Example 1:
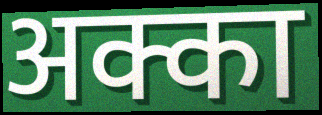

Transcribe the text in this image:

अक्का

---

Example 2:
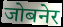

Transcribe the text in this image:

जोबनेर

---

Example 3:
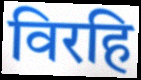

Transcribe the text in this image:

विरहि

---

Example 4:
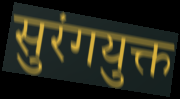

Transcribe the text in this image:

सुरंगयुक्त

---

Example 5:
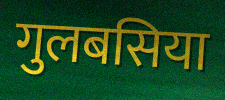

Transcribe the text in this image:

गुलबसिया